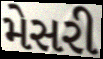
મેસરી